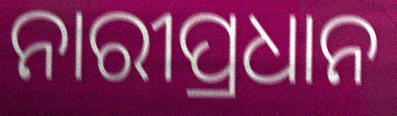
ନାରୀପ୍ରଧାନ